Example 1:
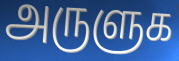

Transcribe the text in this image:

அருளுக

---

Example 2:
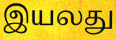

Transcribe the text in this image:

இயலது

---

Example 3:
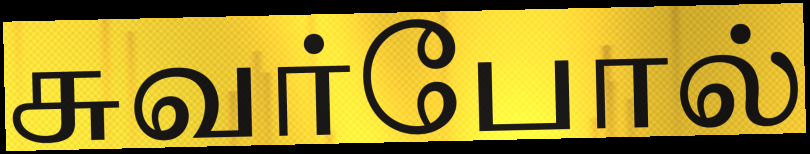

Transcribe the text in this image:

சுவர்போல்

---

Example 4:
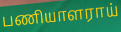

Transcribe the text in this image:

பணியாளராய்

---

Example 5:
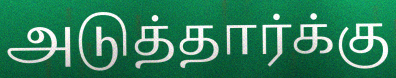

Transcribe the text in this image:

அடுத்தார்க்கு